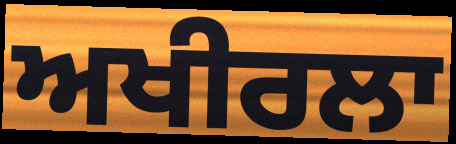
ਅਖੀਰਲਾ